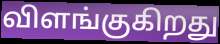
விளங்குகிறது